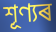
শূণ্যৰ